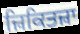
ਜ਼ਿਕਿਤਜ਼ਾ